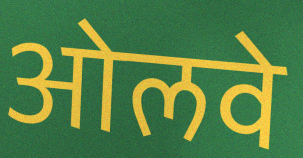
ओलवे